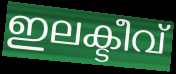
ഇലക്ടീവ്